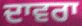
ਦਾਵਰਾ